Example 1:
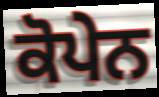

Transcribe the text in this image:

ਕੋਪੇਨ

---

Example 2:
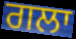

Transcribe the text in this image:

ਗਲਾ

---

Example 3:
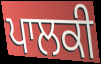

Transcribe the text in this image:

ਪਾਲਕੀ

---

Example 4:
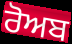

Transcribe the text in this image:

ਰੋਅਬ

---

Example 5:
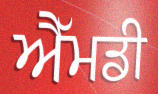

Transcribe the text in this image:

ਐੱਮਡੀ